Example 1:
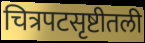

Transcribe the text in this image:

चित्रपटसृष्टीतली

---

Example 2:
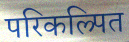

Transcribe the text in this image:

परिकल्पित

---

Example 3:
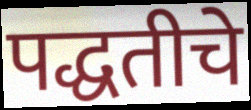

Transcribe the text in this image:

पद्धतीचे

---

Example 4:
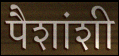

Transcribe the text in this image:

पैशांशी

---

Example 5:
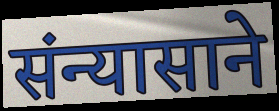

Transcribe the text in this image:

संन्यासाने